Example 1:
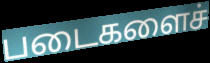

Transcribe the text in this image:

படைகளைச்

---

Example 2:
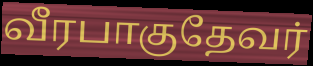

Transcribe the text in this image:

வீரபாகுதேவர்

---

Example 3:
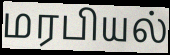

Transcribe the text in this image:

மரபியல்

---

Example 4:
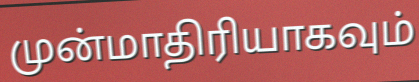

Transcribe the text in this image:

முன்மாதிரியாகவும்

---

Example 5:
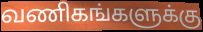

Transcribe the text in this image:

வணிகங்களுக்கு